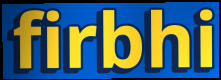
firbhi